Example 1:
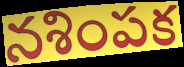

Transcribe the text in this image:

నశింపక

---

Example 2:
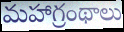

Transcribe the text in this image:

మహాగ్రంథాలు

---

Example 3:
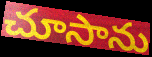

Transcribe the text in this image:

చూసాను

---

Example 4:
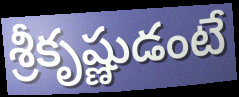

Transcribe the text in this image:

శ్రీకృష్ణుడంటే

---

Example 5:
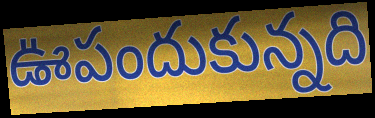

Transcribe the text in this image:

ఊపందుకున్నది